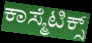
ಕಾಸ್ಮೆಟಿಕ್ಸ್